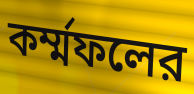
কর্ম্মফলের